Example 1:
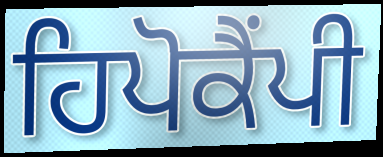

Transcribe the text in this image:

ਹਿਪੋਕੈਂਪੀ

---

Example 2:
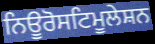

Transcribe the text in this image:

ਨਿਊਰੋਸਟਿਮੂਲੇਸ਼ਨ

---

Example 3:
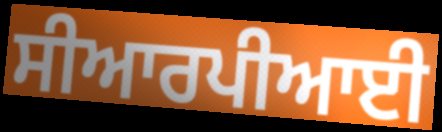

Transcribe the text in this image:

ਸੀਆਰਪੀਆਈ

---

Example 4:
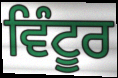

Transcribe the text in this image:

ਵਿੰਟੂਰ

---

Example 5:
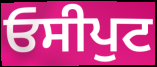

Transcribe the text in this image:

ਓਸੀਪੁਟ